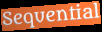
Sequential